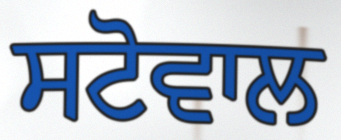
ਸਟੋਵਾਲ